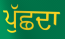
ਪੁੱਛਦਾ